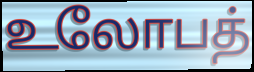
உலோபத்